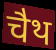
चैथ